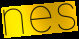
nes